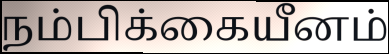
நம்பிக்கையீனம்